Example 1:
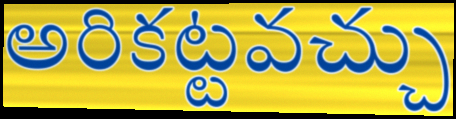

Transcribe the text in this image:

అరికట్టవచ్చు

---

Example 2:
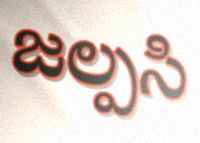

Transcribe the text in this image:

జల్పసి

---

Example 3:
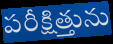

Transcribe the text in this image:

పరీక్షిత్తును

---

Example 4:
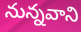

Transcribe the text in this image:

నున్నవాని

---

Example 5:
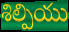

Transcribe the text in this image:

శిల్పియు